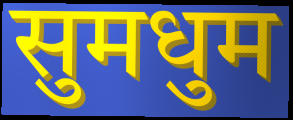
सुमधुम